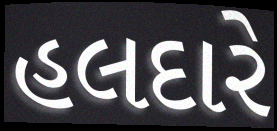
હલદારે